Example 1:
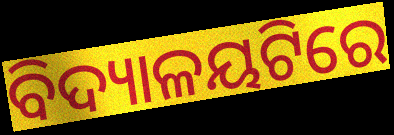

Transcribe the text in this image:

ବିଦ୍ୟାଳୟଟିରେ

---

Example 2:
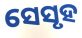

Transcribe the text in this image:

ସେସୃହ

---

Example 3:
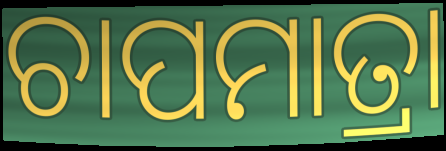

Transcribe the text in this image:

ଚାପମାତ୍ରା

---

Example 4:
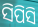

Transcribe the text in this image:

ସିପିସି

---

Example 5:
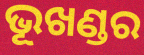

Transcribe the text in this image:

ଭୂଖଣ୍ଡର